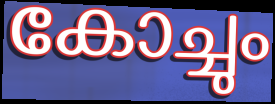
കോച്ചും